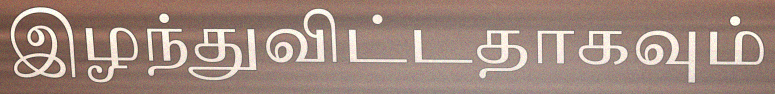
இழந்துவிட்டதாகவும்